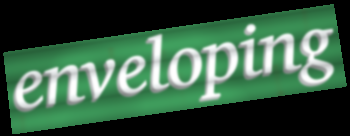
enveloping